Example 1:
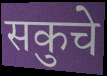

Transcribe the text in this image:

सकुचे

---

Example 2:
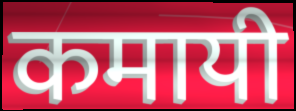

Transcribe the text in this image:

कमायी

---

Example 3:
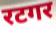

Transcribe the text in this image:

रटगर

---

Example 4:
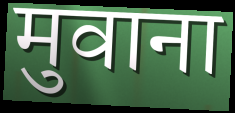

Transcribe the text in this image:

मुवाना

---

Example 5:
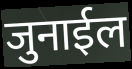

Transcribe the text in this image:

जुनाईल